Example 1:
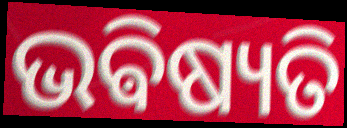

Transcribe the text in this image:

ଭଵିଷ୍ୟତି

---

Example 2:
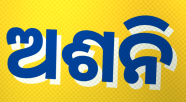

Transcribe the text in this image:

ଅଶନି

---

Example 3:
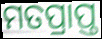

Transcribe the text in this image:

ମତପ୍ରାପ୍ତ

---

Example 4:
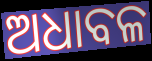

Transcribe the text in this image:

ଅଧାବଳ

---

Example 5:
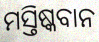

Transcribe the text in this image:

ମସ୍ତିଷ୍କବାନ